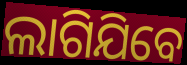
ଲାଗିଯିବେ